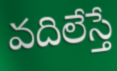
వదిలేస్తే